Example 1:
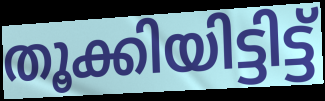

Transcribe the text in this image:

തൂക്കിയിട്ടിട്ട്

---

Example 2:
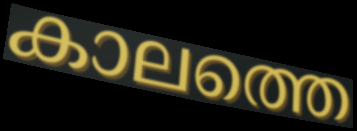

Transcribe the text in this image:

കാലത്തെ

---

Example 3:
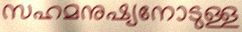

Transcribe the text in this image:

സഹമനുഷ്യനോടുള്ള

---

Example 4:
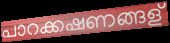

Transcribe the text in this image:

പാറക്കഷണങ്ങള്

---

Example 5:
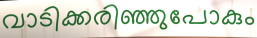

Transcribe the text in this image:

വാടിക്കരിഞ്ഞുപോകും